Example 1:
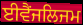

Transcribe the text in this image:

ਈਵੈਂਜਲਿਜਮ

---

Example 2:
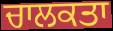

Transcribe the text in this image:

ਚਾਲਕਤਾ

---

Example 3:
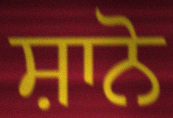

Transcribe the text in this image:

ਸ਼ਾਨੋ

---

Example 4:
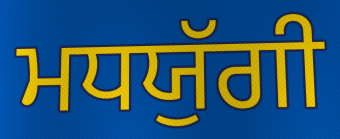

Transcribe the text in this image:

ਮਧਯੁੱਗੀ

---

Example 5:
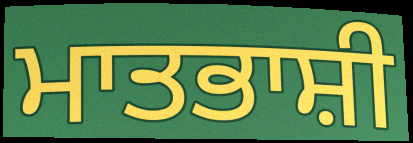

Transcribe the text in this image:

ਮਾਤਭਾਸ਼ੀ